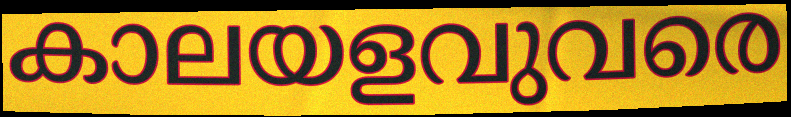
കാലയളവുവരെ